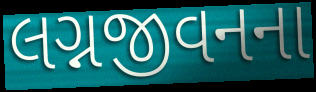
લગ્નજીવનના